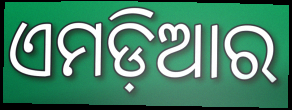
ଏମଡ଼ିଆର